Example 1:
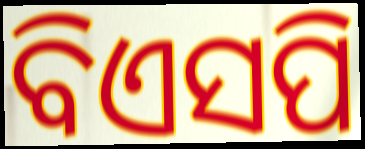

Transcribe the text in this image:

ବିଏସପି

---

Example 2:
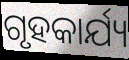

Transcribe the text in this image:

ଗୃହକାର୍ଯ୍ୟ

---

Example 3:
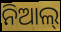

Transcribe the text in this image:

ନିଆଲ୍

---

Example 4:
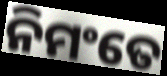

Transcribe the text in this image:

ନିମଂତେ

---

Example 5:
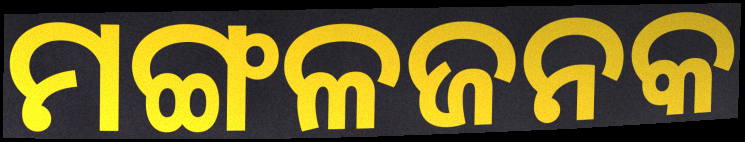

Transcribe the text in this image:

ମଙ୍ଗଳଜନକ